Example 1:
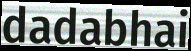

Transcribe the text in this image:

dadabhai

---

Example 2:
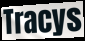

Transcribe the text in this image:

Tracys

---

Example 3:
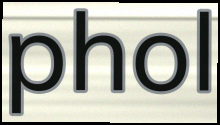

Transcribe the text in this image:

phol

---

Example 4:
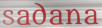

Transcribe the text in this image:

sadana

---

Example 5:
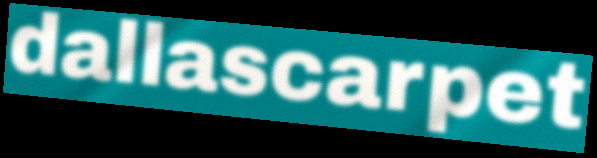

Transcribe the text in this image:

dallascarpet